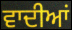
ਵਾਦੀਆਂ